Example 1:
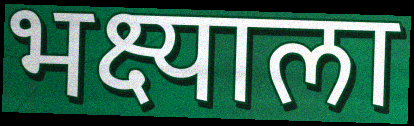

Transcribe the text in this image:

भक्ष्याला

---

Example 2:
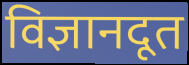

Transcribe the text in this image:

विज्ञानदूत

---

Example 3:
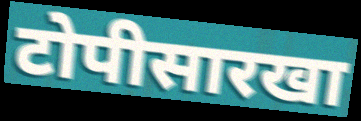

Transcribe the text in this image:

टोपीसारखा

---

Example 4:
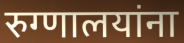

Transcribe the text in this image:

रुग्णालयांना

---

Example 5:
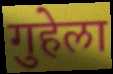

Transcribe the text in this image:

गुहेला